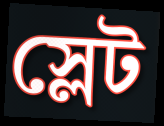
স্লেট